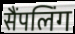
सैंपलिंग